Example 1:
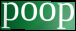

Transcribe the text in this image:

poop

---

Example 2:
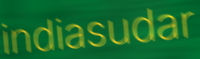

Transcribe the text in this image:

indiasudar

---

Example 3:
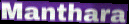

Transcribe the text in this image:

Manthara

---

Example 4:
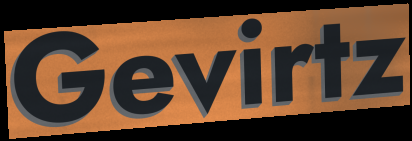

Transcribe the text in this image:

Gevirtz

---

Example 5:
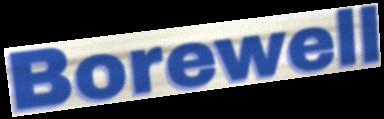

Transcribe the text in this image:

Borewell